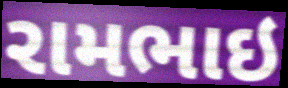
રામભાઇ